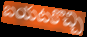
బయటకొచ్చి